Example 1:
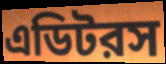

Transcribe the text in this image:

এডিটরস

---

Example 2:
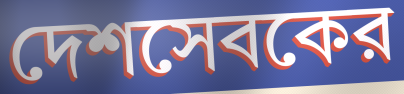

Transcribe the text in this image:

দেশসেবকের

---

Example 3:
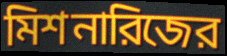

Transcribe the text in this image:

মিশনারিজের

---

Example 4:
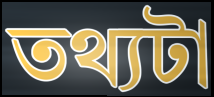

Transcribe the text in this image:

তথ্যটা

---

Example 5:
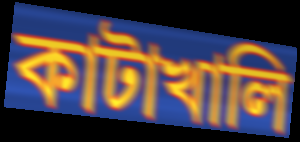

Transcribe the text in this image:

কাটাখালি